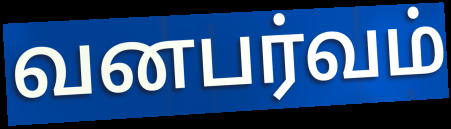
வனபர்வம்